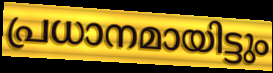
പ്രധാനമായിട്ടും